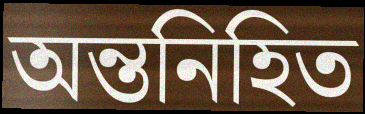
অন্তনিহিত